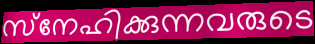
സ്‌നേഹിക്കുന്നവരുടെ